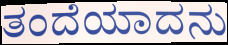
ತಂದೆಯಾದನು